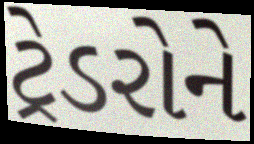
ટ્રેડરોને